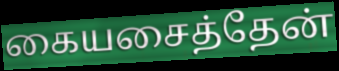
கையசைத்தேன்